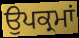
ਉਪਕ੍ਰਮਾਂ